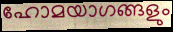
ഹോമയാഗങ്ങളും